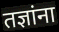
तज्ञांना